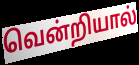
வென்றியால்